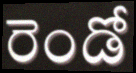
రెండో